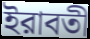
ইরাবতী